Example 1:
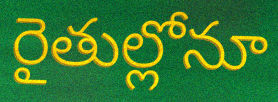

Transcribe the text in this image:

రైతుల్లోనూ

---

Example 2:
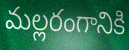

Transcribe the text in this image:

మల్లరంగానికి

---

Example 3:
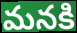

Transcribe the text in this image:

మనకి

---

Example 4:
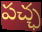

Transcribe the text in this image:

పచ్ఛ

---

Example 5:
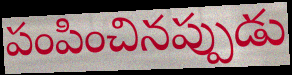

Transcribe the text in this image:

పంపించినప్పుడు